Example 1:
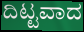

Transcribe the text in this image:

ದಿಟ್ಟವಾದ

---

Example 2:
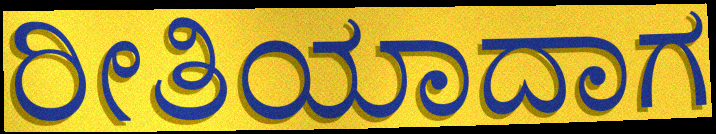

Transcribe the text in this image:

ರೀತಿಯಾದಾಗ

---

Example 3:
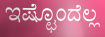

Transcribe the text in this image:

ಇಷ್ಟೊಂದೆಲ್ಲ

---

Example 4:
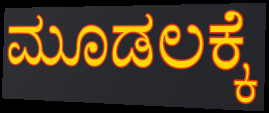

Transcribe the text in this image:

ಮೂಡಲಕ್ಕೆ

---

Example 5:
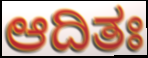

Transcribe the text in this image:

ಆದಿತಃ